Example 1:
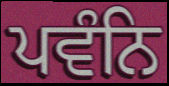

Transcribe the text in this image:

ਪਵੰਨਿ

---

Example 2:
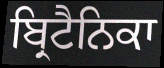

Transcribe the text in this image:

ਬ੍ਰਿਟੈਨਿਕਾ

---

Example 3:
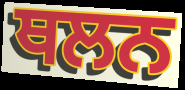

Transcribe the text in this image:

ਥਲਨ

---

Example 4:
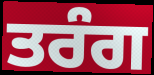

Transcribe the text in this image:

ਤਰੰਗ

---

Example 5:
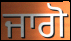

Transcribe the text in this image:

ਜਾਗੋ